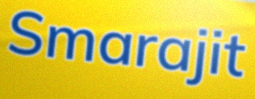
Smarajit